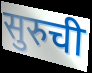
सुरुची